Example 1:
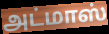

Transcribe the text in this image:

அட்மாஸ்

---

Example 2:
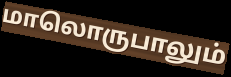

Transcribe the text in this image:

மாலொருபாலும்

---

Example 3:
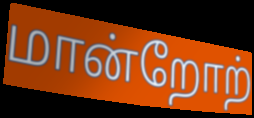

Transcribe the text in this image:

மான்றோற்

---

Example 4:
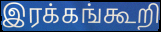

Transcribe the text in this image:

இரக்கங்கூறி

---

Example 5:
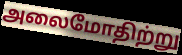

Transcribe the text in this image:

அலைமோதிற்று